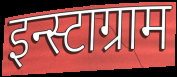
इन्स्टाग्राम